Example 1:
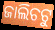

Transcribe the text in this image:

ଜାଲିଚଟୁ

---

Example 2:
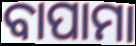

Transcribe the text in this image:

ବାପାମା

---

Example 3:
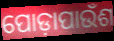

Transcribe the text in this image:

ପୋଡ଼ାପାଉଁଶ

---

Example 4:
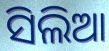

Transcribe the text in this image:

ସିଲିଆ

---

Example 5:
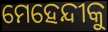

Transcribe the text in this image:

ମେହେନ୍ଦୀକୁ